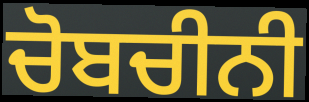
ਚੋਬਚੀਨੀ